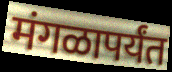
मंगळापर्यंत